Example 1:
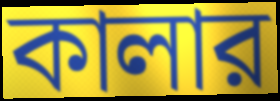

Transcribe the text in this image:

কালার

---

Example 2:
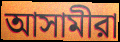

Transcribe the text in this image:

আসামীরা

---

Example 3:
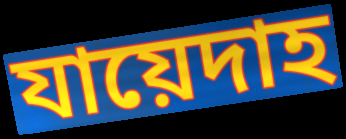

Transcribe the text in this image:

যায়েদাহ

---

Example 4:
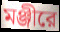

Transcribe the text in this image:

মঞ্জীরে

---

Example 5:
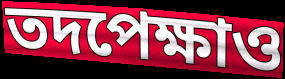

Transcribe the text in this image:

তদপেক্ষাও